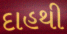
દાહથી